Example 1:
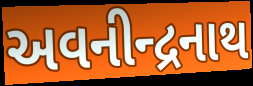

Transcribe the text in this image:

અવનીન્દ્રનાથ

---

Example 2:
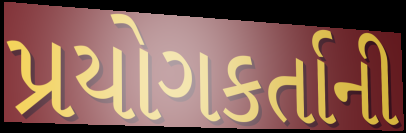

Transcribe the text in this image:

પ્રયોગકર્તાની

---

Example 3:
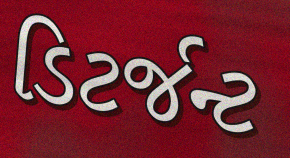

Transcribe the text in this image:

ડિટર્જન્ટ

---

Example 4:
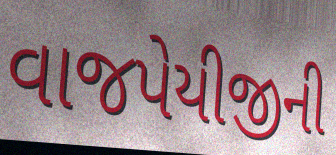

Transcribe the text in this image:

વાજપેયીજીની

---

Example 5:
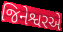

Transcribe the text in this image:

જિનેશ્વરએ